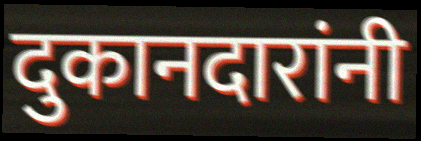
दुकानदारांनी